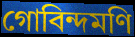
গোবিন্দমণি